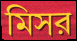
মিসর